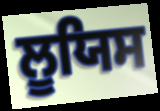
ਲੂਯਿਸ